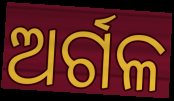
ଅର୍ଗଳ